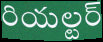
రియల్టర్